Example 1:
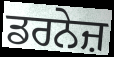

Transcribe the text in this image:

ਡਰਨੇਜ਼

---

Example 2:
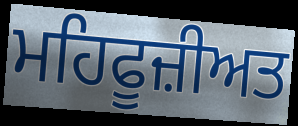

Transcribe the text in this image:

ਮਹਿਫੂਜ਼ੀਅਤ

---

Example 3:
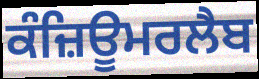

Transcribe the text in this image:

ਕੰਜ਼ਿਊਮਰਲੈਬ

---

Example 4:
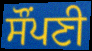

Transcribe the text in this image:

ਸੌਂਪਣੀ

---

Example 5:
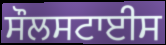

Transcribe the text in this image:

ਸੌਲਸਟਾਈਸ